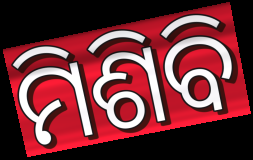
ମିଶିବି